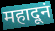
महादूनं